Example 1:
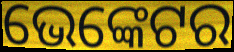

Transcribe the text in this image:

ଭେଙ୍କେଟର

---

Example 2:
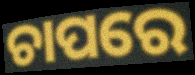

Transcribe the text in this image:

ଚାପରେ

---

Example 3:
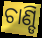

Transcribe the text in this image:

ଚାଣ୍ଡି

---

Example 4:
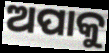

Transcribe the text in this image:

ଅପାକୁ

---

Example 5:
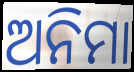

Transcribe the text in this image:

ଅନିମା